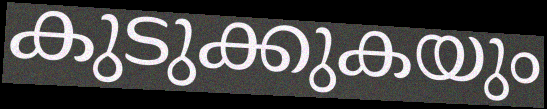
കുടുക്കുകയും